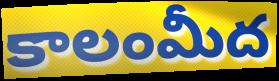
కాలంమీద